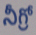
నీగ్రో